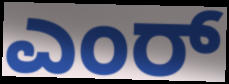
ಎಂರ್